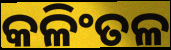
କଳିଂତଳ